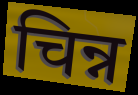
चिन्न